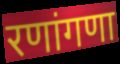
रणांगणा